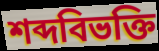
শব্দবিভক্তি